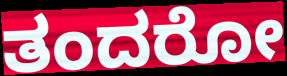
ತಂದರೋ